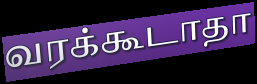
வரக்கூடாதா